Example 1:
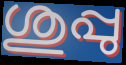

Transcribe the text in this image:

ശുപ്പു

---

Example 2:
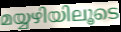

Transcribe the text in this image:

മയ്യഴിയിലൂടെ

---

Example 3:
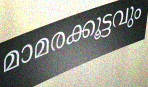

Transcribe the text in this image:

മാമരക്കൂട്ടവും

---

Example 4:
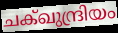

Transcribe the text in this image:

ചക്ഖുന്ദ്രിയം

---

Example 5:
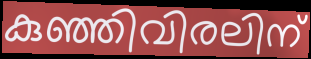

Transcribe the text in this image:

കുഞ്ഞിവിരലിന്